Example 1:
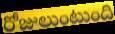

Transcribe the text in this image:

రోజులుంటుంది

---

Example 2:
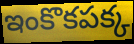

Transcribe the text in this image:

ఇంకొకపక్క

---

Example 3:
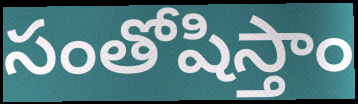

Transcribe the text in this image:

సంతోషిస్తాం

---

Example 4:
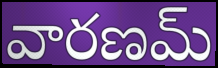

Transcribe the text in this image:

వారణమ్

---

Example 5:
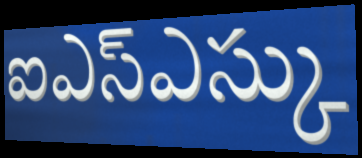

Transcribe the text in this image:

ఐఎస్ఎస్కు